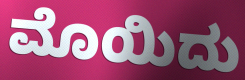
ಮೊಯಿದು